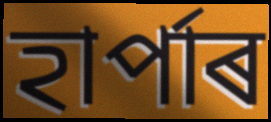
হাৰ্পাৰ